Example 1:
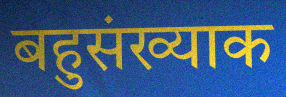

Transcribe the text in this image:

बहुसंख्याक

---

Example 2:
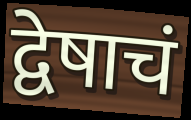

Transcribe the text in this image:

द्वेषाचं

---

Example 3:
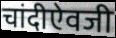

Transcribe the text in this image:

चांदीऐवजी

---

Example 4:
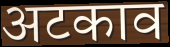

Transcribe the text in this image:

अटकाव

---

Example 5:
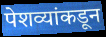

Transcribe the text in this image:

पेशव्यांकडून